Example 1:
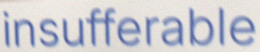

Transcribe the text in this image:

insufferable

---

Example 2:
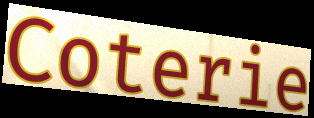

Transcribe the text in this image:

Coterie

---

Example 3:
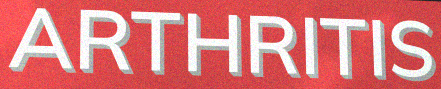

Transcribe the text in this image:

ARTHRITIS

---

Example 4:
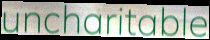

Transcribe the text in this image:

uncharitable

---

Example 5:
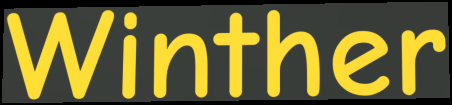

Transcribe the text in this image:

Winther